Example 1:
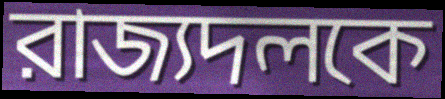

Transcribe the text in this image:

রাজ্যদলকে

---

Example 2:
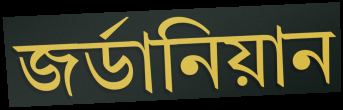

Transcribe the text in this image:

জর্ডানিয়ান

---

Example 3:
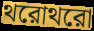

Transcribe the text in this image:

থরোথরো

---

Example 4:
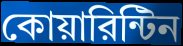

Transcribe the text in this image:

কোয়ারিন্টিন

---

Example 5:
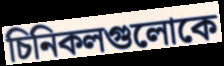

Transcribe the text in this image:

চিনিকলগুলোকে